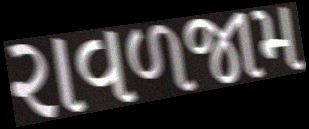
રાવળજામ